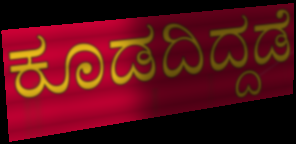
ಕೂಡದಿದ್ದಡೆ